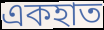
একহাত